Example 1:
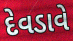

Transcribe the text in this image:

દેવડાવે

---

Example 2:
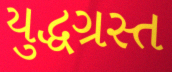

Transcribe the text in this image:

યુદ્ધગ્રસ્ત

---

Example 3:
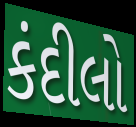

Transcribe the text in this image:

કંદીલો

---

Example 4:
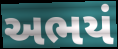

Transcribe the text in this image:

અભયં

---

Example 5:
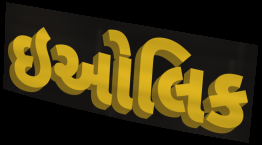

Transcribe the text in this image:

ઇઓલિક